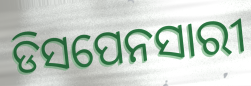
ଡିସପେନସାରୀ